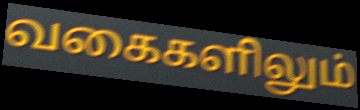
வகைகளிலும்